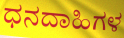
ಧನದಾಹಿಗಳ